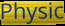
Physic